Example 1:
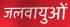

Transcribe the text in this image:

जलवायुओं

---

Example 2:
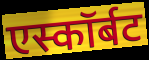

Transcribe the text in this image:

एस्कॉर्बट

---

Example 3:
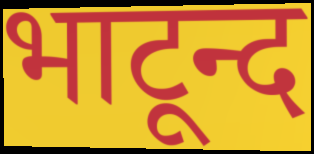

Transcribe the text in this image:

भाटून्द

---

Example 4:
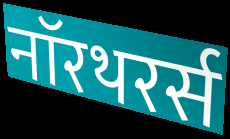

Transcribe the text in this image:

नॉरथरर्स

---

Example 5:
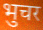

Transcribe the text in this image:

भुचर